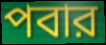
পবার